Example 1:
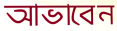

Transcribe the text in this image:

আভাবেন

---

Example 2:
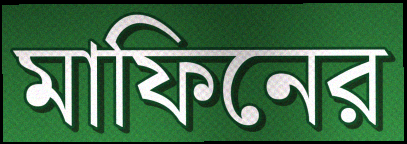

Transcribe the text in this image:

মাফিনের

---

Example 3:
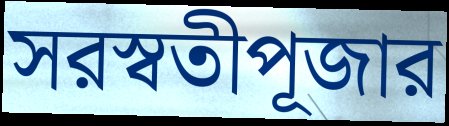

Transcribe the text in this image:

সরস্বতীপূজার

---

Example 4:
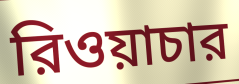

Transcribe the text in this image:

রিওয়াচার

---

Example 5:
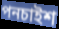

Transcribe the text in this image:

পনচাইশ